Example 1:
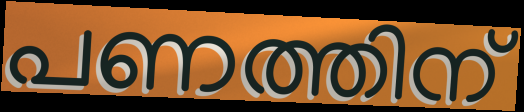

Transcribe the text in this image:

പണത്തിന്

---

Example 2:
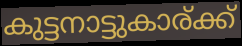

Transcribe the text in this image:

കുട്ടനാട്ടുകാര്ക്ക്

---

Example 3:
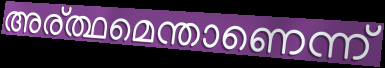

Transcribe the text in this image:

അര്ത്ഥമെന്താണെന്ന്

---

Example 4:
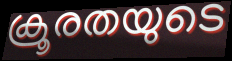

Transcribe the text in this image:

ക്രൂരതയുടെ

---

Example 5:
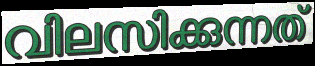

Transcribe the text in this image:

വിലസിക്കുന്നത്